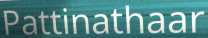
Pattinathaar